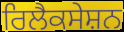
ਰਿਲੈਕਸੇਸ਼ਨ